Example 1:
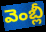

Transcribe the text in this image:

వెంబ్లీ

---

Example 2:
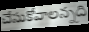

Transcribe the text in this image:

చేసుకోవాలన్నది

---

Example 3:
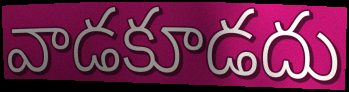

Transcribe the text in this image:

వాడకూడదు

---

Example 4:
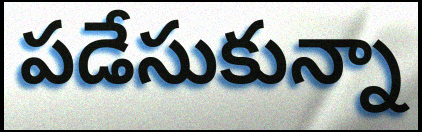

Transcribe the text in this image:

పడేసుకున్నా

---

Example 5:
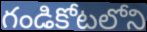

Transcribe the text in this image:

గండికోటలోని